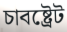
চাবষ্ট্ৰেট